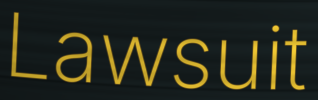
Lawsuit